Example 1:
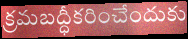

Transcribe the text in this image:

క్రమబద్ధీకరించేందుకు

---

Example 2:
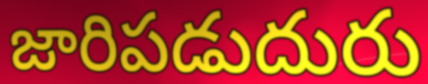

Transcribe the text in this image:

జారిపడుదురు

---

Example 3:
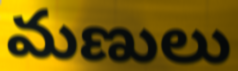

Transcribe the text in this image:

మణులు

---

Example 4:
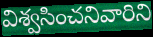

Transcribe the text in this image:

విశ్వసించనివారిని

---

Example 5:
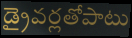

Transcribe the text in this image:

డ్రైవర్లతోపాటు